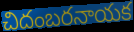
చిదంబరనాయక